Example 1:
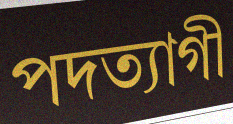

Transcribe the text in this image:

পদত্যাগী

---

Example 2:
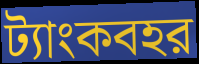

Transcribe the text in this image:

ট্যাংকবহর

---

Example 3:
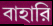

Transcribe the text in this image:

বাহারি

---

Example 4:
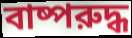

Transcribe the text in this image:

বাষ্পরুদ্ধ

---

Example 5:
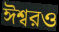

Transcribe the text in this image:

ঈশ্বরও